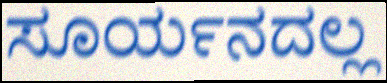
ಸೂರ್ಯನದಲ್ಲ